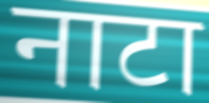
नाटा